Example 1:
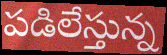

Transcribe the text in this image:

పడిలేస్తున్న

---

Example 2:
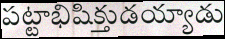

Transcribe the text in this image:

పట్టాభిషిక్తుడయ్యాడు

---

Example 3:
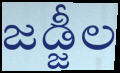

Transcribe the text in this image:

జడ్జీల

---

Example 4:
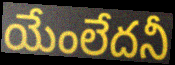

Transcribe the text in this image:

యేంలేదనీ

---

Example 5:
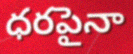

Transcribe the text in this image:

ధరపైనా